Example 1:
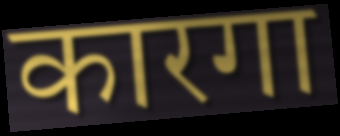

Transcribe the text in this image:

कारगा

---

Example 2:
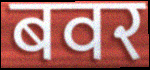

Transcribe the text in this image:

बवर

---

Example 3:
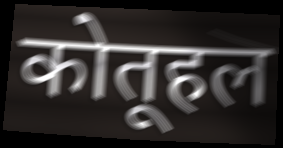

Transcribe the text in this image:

कोतूहल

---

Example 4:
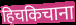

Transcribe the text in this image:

हिचकिचाना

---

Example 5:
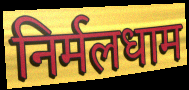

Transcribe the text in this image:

निर्मलधाम